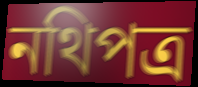
নথিপত্র